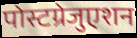
पोस्टग्रेजुएशन